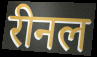
रीनल